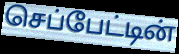
செப்பேட்டின்